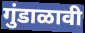
गुंडाळावी